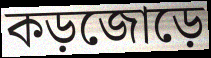
কড়জোড়ে